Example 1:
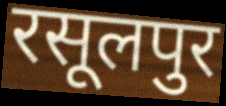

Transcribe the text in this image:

रसूलपुर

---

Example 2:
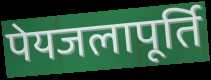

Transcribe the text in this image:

पेयजलापूर्ति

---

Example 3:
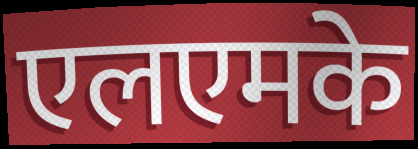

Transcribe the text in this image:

एलएमके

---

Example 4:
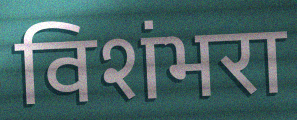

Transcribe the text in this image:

विशंभरा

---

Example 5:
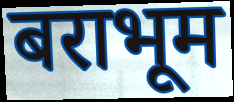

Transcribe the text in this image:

बराभूम